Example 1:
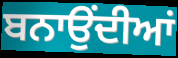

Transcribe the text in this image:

ਬਨਾਉਂਦੀਆਂ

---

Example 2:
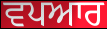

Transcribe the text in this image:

ਵਪਆਰ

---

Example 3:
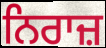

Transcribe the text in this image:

ਨਿਰਾਜ਼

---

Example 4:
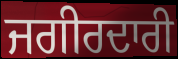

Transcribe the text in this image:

ਜਗੀਰਦਾਰੀ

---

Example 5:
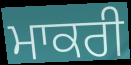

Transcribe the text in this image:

ਮਾਕਰੀ